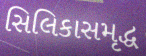
સિલિકાસમૃદ્ધ